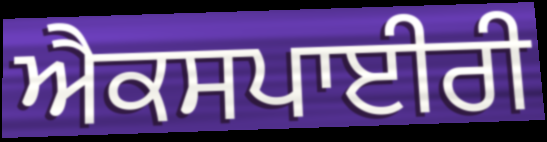
ਐਕਸਪਾਈਰੀ